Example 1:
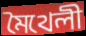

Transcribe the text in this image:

মৈথেলী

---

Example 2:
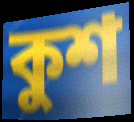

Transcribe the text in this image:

কুশ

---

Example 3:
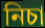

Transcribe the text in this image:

নিচা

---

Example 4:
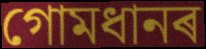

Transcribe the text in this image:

গোমধানৰ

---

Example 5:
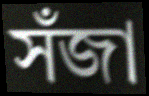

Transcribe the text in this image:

সঁজা